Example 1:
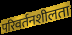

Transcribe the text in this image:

परिवर्तनशीलता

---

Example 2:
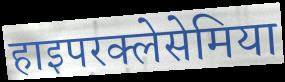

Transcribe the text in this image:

हाइपरक्लेसेमिया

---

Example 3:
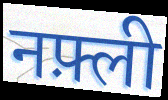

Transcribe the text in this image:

नफ़्ली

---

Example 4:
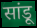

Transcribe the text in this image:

सांडू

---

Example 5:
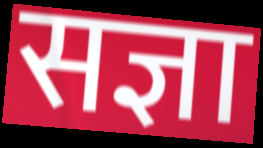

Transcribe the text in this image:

सज्ञा